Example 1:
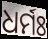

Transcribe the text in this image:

ଧର୍ମଃ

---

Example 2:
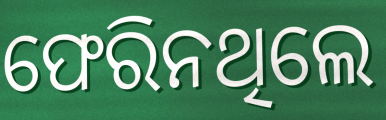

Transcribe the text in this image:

ଫେରିନଥିଲେ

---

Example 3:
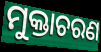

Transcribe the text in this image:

ମୁକ୍ତାଚରଣ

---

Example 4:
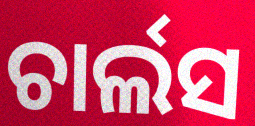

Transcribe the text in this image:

ଚାର୍ଲସ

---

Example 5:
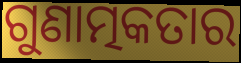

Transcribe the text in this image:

ଗୁଣାତ୍ମକତାର